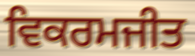
ਵਿਕਰਮਜੀਤ